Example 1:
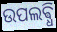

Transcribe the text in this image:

ଉପଲଵ୍ଧି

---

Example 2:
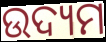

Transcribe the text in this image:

ଉଦ୍ୟମ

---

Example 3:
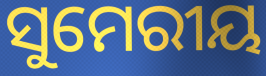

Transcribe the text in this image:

ସୁମେରୀୟ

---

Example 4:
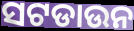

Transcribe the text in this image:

ସଟଡାଉନ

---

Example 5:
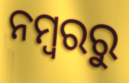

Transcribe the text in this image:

ନମ୍ବରରୁ